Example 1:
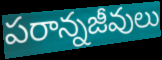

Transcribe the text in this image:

పరాన్నజీవులు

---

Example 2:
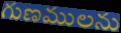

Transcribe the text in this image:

గుణములను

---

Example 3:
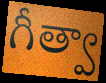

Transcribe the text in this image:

గీత్వా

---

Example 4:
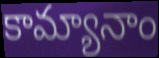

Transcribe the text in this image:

కామ్యానాం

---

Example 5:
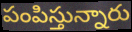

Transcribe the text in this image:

పంపిస్తున్నారు